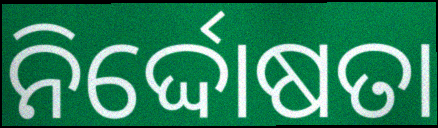
ନିର୍ଦ୍ଦୋଷତା